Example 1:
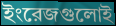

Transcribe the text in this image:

ইংরেজগুলোই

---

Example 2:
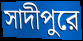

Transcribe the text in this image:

সাদীপুরে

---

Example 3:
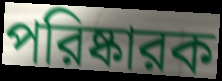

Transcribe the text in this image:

পরিষ্কারক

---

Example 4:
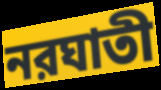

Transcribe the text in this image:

নরঘাতী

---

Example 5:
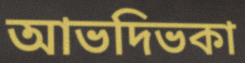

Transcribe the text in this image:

আভদিভকা